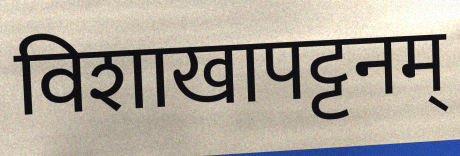
विशाखापट्टनम्